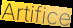
Artifice